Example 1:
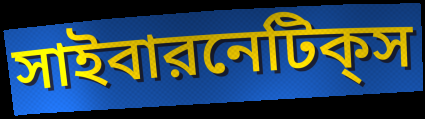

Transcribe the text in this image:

সাইবারনেটিক্‌স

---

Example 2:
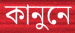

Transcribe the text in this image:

কানুনে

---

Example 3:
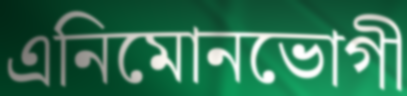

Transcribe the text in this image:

এনিমোনভোগী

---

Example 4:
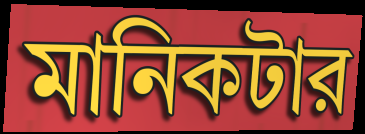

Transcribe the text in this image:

মানিকটার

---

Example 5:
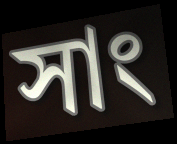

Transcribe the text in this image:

সাং